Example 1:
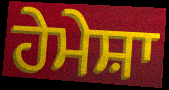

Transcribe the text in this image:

ਹੇਮੇਸ਼ਾ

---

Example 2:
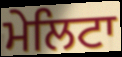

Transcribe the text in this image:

ਮੇਲਿਟਾ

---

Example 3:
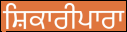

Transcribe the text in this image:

ਸ਼ਿਕਾਰੀਪਾਰਾ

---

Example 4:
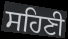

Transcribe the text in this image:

ਸਹਿਣੀ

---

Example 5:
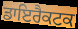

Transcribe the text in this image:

ਡਾਇਰੈਕਟਕ